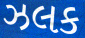
ઝલક